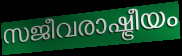
സജീവരാഷ്ട്രീയം